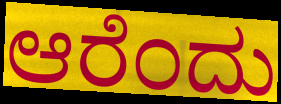
ಆರೆಂದು